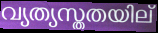
വ്യത്യസ്തതയില്